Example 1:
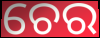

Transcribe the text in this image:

ଚେର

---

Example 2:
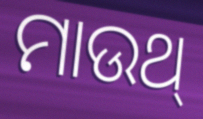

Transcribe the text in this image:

ମାଉଥ୍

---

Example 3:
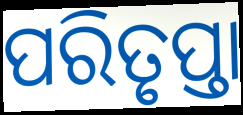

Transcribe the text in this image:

ପରିତୃପ୍ତା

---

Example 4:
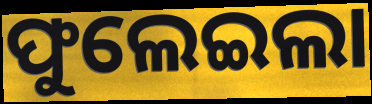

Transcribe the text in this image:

ଫୁଲେଇଲା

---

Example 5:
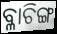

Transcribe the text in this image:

ବ୍ଳାଚିଙ୍ଗ